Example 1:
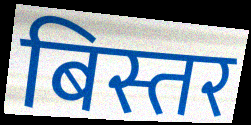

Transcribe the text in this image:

बिस्‍तर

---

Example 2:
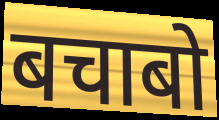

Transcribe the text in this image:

बचाबो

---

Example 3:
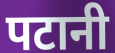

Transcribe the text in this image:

पटानी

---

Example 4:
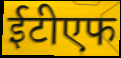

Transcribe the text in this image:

ईटीएफ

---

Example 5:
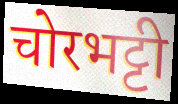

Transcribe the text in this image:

चोरभट्टी